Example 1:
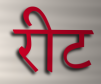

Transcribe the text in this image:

रीट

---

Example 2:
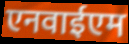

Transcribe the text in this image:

एनवाईएम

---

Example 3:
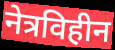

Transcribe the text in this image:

नेत्रविहीन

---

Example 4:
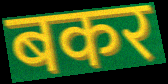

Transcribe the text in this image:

बकर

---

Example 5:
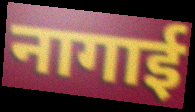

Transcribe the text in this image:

नागाई